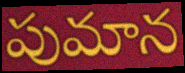
పుమాన